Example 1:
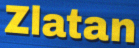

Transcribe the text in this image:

Zlatan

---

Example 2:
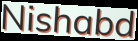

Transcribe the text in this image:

Nishabd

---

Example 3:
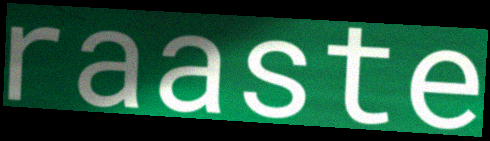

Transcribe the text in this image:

raaste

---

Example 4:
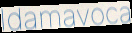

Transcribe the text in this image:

Idamavoca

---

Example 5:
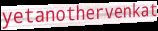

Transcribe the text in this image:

yetanothervenkat